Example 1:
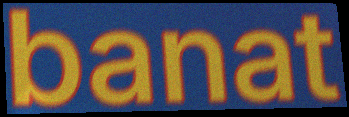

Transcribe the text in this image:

banat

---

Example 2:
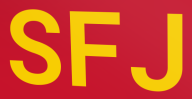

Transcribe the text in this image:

SFJ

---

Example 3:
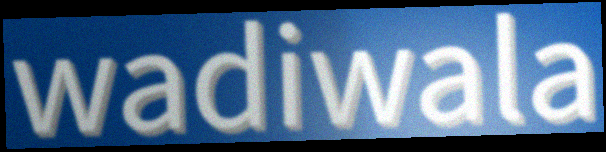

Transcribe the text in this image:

wadiwala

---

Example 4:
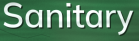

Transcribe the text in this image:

Sanitary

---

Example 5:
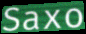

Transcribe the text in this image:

Saxo